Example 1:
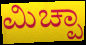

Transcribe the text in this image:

ಮಿಚ್ಪಾ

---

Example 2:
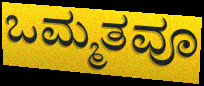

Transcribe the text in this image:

ಒಮ್ಮತವೂ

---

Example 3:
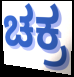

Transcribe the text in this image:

ಚಕ್ರ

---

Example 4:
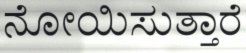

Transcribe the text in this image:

ನೋಯಿಸುತ್ತಾರೆ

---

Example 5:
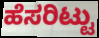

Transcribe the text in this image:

ಹೆಸರಿಟ್ಟು